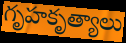
గృహకృత్యాలు